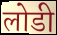
लोडी